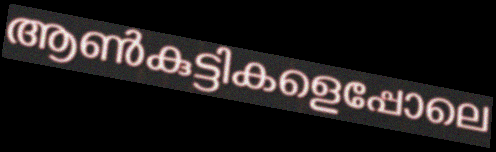
ആൺകുട്ടികളെപ്പോലെ